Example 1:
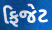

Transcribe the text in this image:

ફિજેટ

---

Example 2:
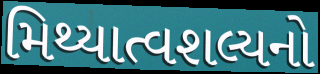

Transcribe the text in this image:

મિથ્યાત્વશલ્યનો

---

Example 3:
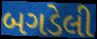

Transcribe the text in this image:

બગડેલી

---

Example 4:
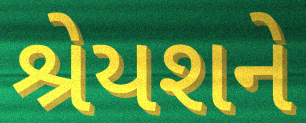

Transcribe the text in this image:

શ્રેયશને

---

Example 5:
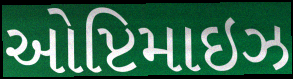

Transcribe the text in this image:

ઓપ્ટિમાઇઝ